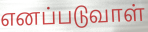
எனப்படுவாள்